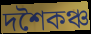
দশৈকঞ্চ